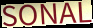
SONAL